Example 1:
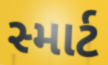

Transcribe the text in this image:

સ્માર્ટ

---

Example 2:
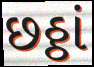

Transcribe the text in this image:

છઠ્ઠાં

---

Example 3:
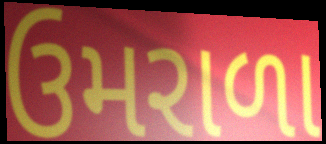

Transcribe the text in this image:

ઉમરાળા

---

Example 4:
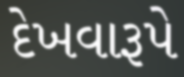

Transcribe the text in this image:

દેખવારૂપે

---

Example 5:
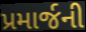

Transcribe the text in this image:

પ્રમાર્જની